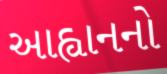
આહ્વાનનો